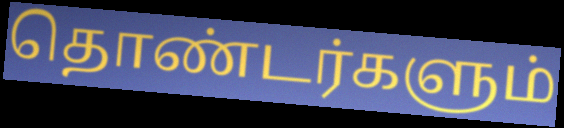
தொண்டர்களும்